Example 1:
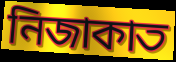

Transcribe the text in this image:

নিজাকাত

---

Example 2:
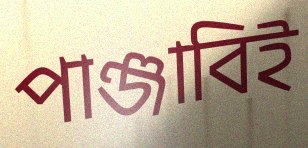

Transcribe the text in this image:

পাঞ্জাবিই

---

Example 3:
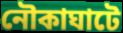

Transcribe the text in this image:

নৌকাঘাটে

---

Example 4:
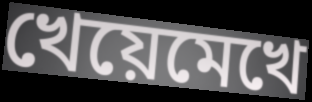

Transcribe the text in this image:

খেয়েমেখে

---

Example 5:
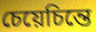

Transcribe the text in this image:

চেয়েচিন্তে